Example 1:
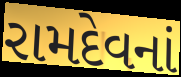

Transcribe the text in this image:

રામદેવનાં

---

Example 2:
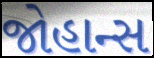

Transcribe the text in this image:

જોહાન્સ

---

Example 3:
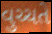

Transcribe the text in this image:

વુચ્ચતે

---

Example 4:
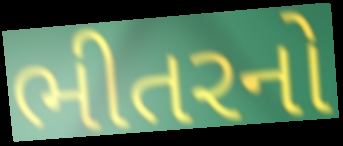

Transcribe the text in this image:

ભીતરનો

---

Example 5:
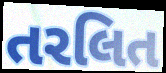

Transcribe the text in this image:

તરલિત